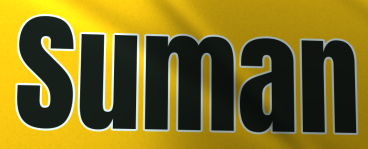
Suman